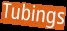
Tubings